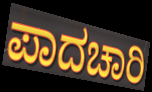
ಪಾದಚಾರಿ